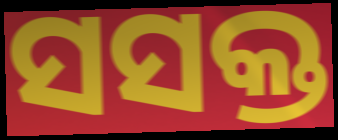
ସସକ୍ତ